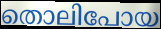
തൊലിപോയ